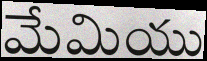
మేమియు